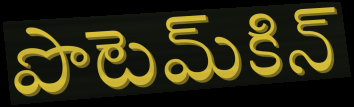
పొటెమ్‌కిన్